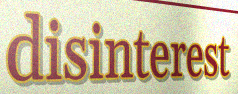
disinterest